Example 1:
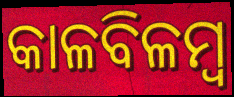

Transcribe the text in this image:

କାଳବିଳମ୍ବ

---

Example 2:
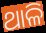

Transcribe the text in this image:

ଥାଳି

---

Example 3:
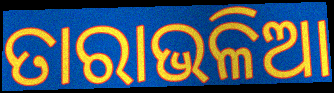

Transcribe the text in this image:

ତାରାଭଳିଆ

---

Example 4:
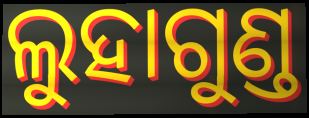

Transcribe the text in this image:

ଲୁହାଗୁଣ୍ଡ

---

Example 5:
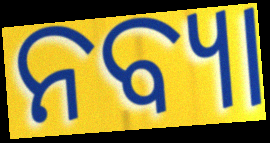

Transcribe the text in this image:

ନବ୍ୟା